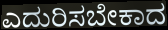
ಎದುರಿಸಬೇಕಾದ